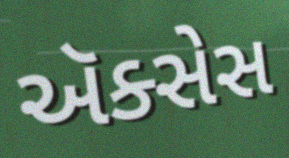
ઍક્સેસ